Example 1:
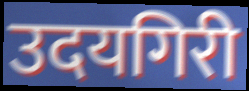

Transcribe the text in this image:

उदयगिरी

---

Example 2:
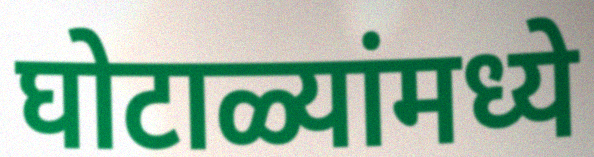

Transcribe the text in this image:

घोटाळ्यांमध्ये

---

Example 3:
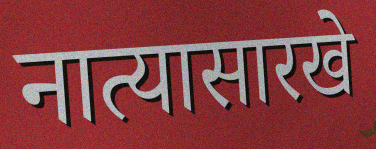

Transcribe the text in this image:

नात्यासारखे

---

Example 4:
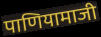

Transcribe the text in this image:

पाणियामाजी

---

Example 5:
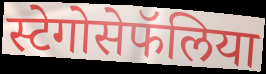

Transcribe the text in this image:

स्टेगोसेफॅलिया